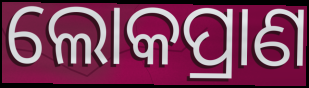
ଲୋକପ୍ରାଣ